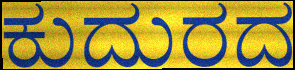
ಕುದುರದ